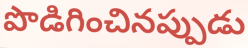
పొడిగించినప్పుడు